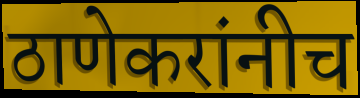
ठाणेकरांनीच